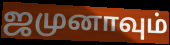
ஜமுனாவும்